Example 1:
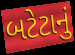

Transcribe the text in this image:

બટેટાનું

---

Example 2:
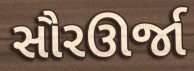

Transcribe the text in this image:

સૌરઊર્જા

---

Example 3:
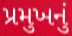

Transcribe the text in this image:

પ્રમુખનું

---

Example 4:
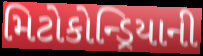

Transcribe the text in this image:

મિટોકોન્ડ્રિયાની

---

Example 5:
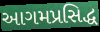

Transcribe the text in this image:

આગમપ્રસિદ્ધ